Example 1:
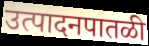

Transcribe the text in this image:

उत्पादनपातळी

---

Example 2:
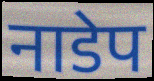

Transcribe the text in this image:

नाडेप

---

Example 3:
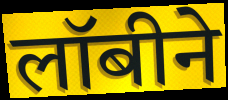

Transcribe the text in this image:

लॉबीने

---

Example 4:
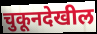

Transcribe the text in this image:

चुकूनदेखील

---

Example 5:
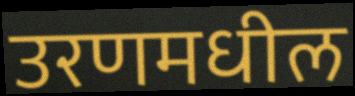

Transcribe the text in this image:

उरणमधील